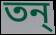
তন্